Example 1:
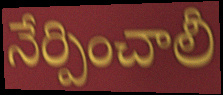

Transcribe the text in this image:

నేర్పించాలీ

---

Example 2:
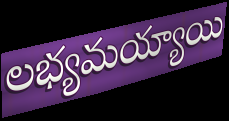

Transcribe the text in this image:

లభ్యమయ్యాయి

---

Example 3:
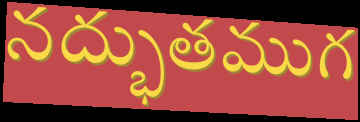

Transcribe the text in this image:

నద్భుతముగ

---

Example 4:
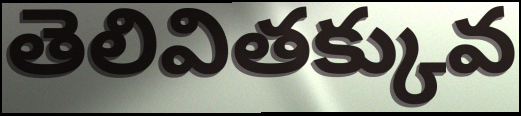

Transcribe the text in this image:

తెలివితక్కువ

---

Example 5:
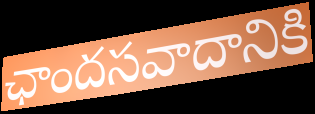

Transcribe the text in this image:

ఛాందసవాదానికి